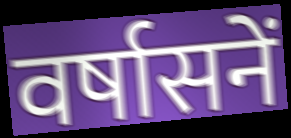
वर्षासनें